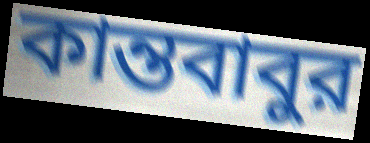
কান্তবাবুর